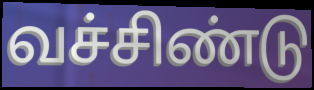
வச்சிண்டு